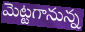
మెట్టగానున్న